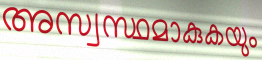
അസ്വസ്ഥമാകുകയും